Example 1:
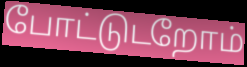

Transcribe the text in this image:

போட்டுடறோம்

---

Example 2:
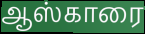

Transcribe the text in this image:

ஆஸ்காரை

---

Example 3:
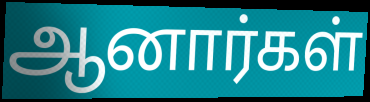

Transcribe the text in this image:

ஆனார்கள்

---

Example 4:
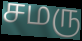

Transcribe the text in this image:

சமரு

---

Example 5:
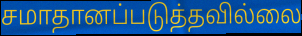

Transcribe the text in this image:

சமாதானப்படுத்தவில்லை